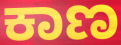
ಕಾಣ